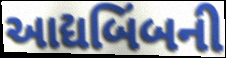
આદ્યબિંબની